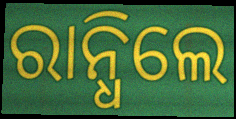
ରାନ୍ଧିଲେ